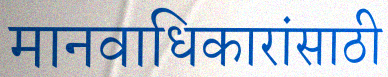
मानवाधिकारांसाठी